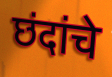
छंदांचे